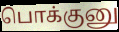
பொக்குனு